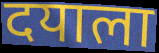
दयाला